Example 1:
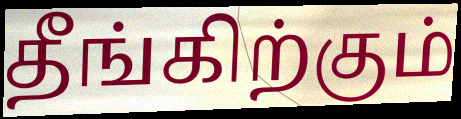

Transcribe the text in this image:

தீங்கிற்கும்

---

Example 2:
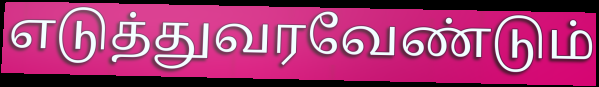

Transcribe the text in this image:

எடுத்துவரவேண்டும்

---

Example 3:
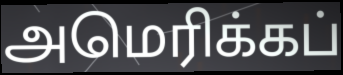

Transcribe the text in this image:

அமெரிக்கப்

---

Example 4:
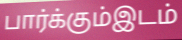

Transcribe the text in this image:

பார்க்கும்இடம்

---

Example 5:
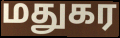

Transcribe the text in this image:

மதுகர